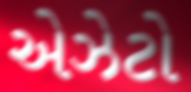
એઝેટો